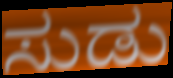
ಸುಡು